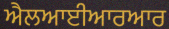
ਐਲਆਈਆਰਆਰ